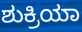
ಶುಕ್ರಿಯಾ